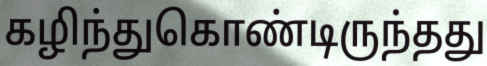
கழிந்துகொண்டிருந்தது